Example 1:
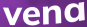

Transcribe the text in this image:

vena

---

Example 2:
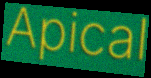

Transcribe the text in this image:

Apical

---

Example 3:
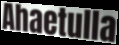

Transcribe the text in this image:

Ahaetulla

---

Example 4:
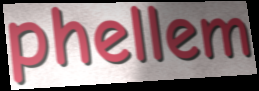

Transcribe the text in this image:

phellem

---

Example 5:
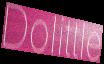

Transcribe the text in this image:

Dolittle